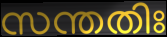
സന്തതിഃ